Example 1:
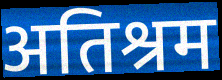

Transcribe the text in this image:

अतिश्रम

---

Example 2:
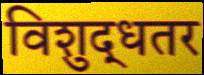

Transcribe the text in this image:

विशुद्धतर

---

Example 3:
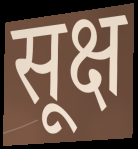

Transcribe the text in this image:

सूक्ष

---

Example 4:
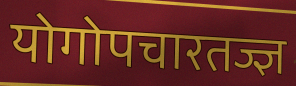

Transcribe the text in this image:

योगोपचारतज्ज्ञ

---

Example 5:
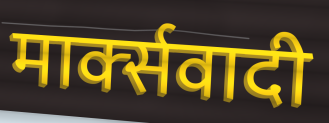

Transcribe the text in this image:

मार्क्‍सवादी